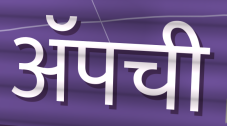
ॲपची